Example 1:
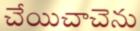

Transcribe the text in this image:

చేయిచాచెను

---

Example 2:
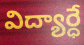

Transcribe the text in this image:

విద్యార్ధే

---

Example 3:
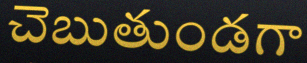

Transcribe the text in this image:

చెబుతుండగా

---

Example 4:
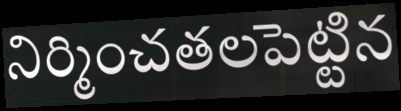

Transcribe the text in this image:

నిర్మించతలపెట్టిన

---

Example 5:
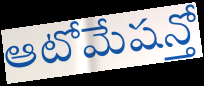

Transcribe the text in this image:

ఆటోమేషన్తో